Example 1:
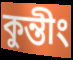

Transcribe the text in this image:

কুন্তীং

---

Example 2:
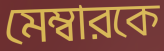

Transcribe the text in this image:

মেম্বারকে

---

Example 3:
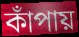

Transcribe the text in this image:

কাঁপায়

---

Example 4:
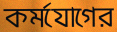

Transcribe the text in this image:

কর্মযোগের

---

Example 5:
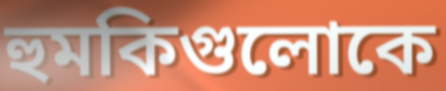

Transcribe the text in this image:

হুমকিগুলোকে